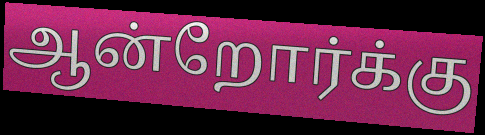
ஆன்றோர்க்கு